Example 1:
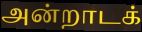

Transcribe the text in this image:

அன்றாடக்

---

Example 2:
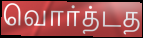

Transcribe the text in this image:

வொர்த்டத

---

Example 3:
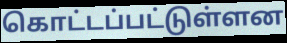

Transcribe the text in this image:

கொட்டப்பட்டுள்ளன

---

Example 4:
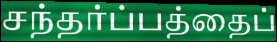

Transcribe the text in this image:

சந்தர்ப்பத்தைப்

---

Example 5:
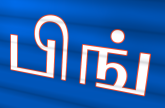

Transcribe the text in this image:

பிங்